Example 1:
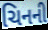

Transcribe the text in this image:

ચિનની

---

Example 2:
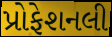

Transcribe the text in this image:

પ્રોફેશનલી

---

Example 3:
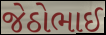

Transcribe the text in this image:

જેઠોભાઈ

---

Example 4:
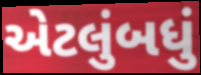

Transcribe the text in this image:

એટલુંબધું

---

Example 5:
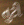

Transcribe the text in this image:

તુટી